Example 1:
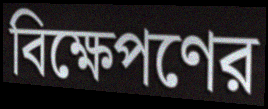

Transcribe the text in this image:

বিক্ষেপণের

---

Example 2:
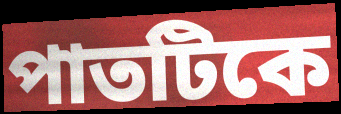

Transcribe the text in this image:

পাতটিকে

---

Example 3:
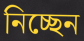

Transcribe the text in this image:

নিচ্ছেন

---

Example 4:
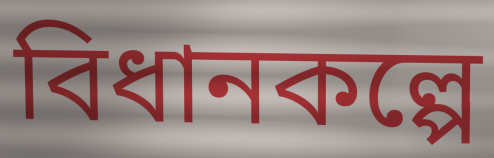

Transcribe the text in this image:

বিধানকল্পে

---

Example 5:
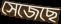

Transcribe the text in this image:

সেজেছে